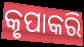
କୃପାକରି